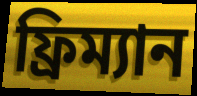
ফ্রিম্যান